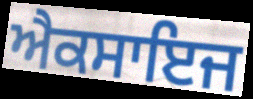
ਐਕਸਾਇਜ